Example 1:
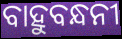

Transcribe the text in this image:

ବାହୁବନ୍ଧନୀ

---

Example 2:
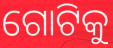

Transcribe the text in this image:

ଗୋଟିକୁ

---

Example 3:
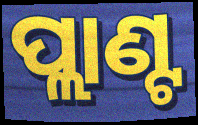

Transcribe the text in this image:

ପ୍ଲାଣ୍ଟ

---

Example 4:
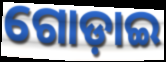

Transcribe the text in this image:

ଗୋଡ଼ାଇ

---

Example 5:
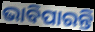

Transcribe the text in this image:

ଭାବିପାରନ୍ତି